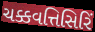
ચક્કવત્તિસિરિં